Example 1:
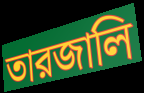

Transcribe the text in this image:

তারজালি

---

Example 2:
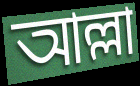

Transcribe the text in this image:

আল্লা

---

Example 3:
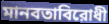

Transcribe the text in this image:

মানবতাবিরোধী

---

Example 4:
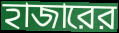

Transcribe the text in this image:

হাজারের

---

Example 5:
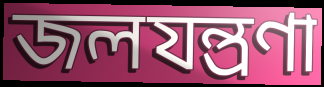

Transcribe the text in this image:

জলযন্ত্রণা